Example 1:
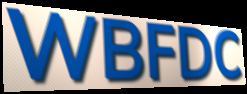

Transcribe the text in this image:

WBFDC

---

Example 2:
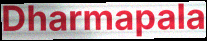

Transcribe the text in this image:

Dharmapala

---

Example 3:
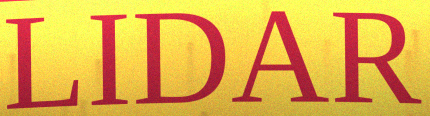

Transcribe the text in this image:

LIDAR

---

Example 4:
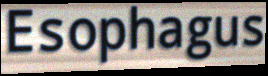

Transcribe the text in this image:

Esophagus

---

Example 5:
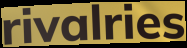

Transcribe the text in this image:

rivalries